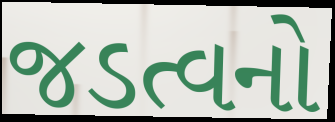
જડત્વનો